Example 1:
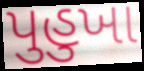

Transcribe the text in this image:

પુહુખા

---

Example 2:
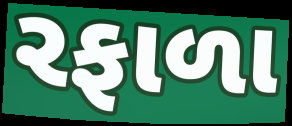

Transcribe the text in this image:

રફાળા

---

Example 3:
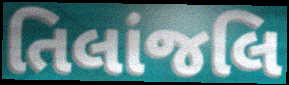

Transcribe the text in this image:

તિલાંજલિ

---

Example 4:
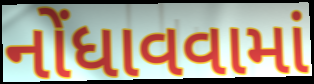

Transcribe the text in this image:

નોંધાવવામાં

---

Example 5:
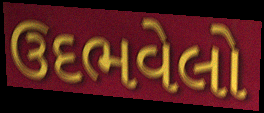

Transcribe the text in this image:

ઉદભવેલો